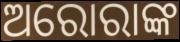
ଅରୋରାଙ୍କ